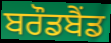
ਬਰੌਡਬੈਂਡ